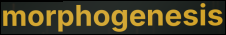
morphogenesis